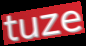
tuze